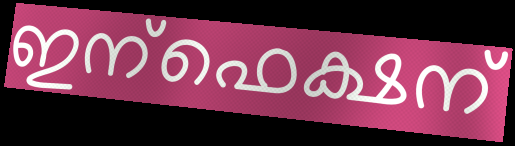
ഇന്ഫെക്ഷന്